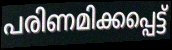
പരിണമിക്കപ്പെട്ട്